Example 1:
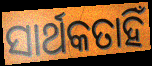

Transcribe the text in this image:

ସାର୍ଥକତାହିଁ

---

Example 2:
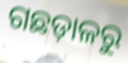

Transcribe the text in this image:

ଗଛଡ଼ାଳରୁ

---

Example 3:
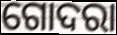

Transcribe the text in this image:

ଗୋଦରା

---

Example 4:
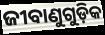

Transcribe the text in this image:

ଜୀବାଣୁଗୁଡ଼ିକ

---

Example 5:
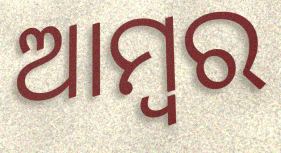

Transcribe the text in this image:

ଆମ୍ବର